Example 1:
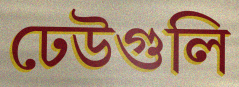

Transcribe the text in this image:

ঢেউগুলি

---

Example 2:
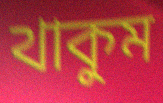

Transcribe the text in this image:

থাকুম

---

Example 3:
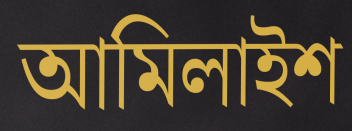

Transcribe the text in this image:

আমিলাইশ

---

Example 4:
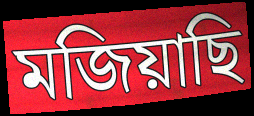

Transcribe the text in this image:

মজিয়াছি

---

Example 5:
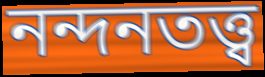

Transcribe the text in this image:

নন্দনতত্ত্ব